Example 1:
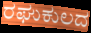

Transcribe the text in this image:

ರಘುಕುಲದ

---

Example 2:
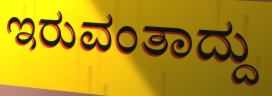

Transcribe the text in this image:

ಇರುವಂತಾದ್ದು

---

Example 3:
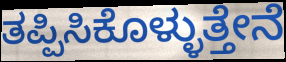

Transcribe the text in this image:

ತಪ್ಪಿಸಿಕೊಳ್ಳುತ್ತೇನೆ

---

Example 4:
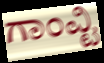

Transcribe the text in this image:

ಗಾಂವ್ಟಿ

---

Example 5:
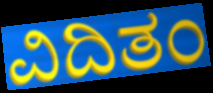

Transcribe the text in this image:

ವಿದಿತಂ